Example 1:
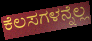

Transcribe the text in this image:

ಕೆಲಸಗಳನ್ನೆಲ್ಲ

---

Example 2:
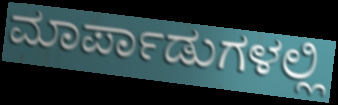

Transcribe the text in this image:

ಮಾರ್ಪಾಡುಗಳಲ್ಲಿ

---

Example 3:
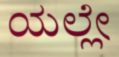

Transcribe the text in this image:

ಯಲ್ಲೇ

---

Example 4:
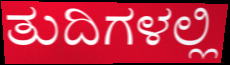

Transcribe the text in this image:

ತುದಿಗಳಲ್ಲಿ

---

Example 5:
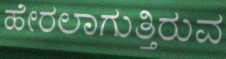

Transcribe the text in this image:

ಹೇರಲಾಗುತ್ತಿರುವ